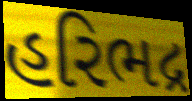
હરિભદ્ર